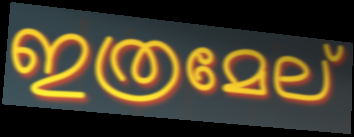
ഇത്രമേല്